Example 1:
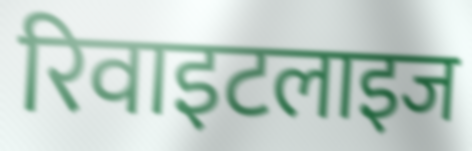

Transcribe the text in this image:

रिवाइटलाइज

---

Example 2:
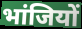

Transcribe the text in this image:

भांजियों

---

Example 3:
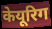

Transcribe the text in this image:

केयूरिग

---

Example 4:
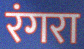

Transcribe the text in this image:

रंगरा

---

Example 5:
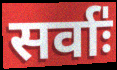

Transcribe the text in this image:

सर्वाः॑